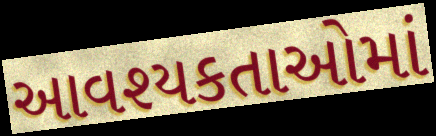
આવશ્યકતાઓમાં